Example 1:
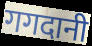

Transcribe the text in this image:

गगदानी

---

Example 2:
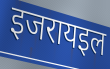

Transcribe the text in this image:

इजरायइल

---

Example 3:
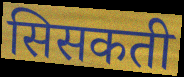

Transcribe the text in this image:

सिसकती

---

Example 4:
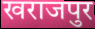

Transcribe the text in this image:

खराजपुर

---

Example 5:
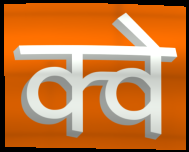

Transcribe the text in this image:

क्वे